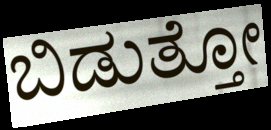
ಬಿಡುತ್ತೋ